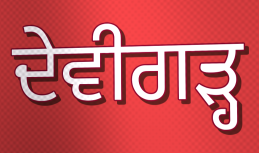
ਦੇਵੀਗੜ੍ਹ